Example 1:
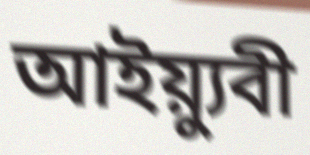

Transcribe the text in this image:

আইয়্যুবী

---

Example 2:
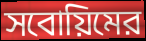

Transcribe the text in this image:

সবোয়িমের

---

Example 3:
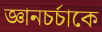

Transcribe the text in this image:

জ্ঞানচর্চাকে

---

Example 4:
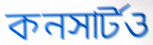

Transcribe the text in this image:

কনসার্টও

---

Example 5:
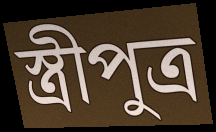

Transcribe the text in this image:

স্ত্রীপুত্র